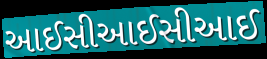
આઈસીઆઈસીઆઈ